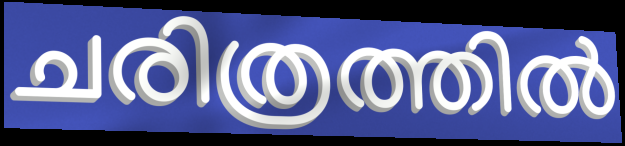
ചരിത്രത്തിൽ